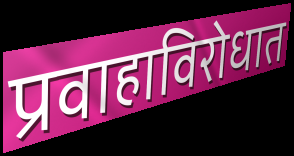
प्रवाहाविरोधात